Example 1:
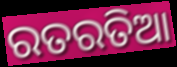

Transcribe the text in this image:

ରତରତିଆ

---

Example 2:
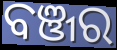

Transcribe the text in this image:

ବଞ୍ଜର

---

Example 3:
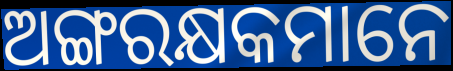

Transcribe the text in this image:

ଅଙ୍ଗରକ୍ଷକମାନେ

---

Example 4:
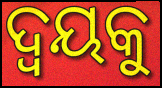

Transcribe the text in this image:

ଦ୍ୱୟକୁ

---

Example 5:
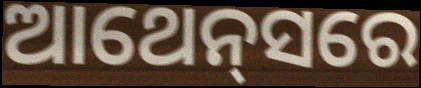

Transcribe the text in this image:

ଆଥେନ୍‍ସରେ